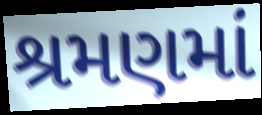
શ્રમણમાં